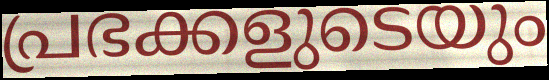
പ്രഭക്കളുടെയും